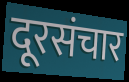
दूरसंचार